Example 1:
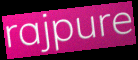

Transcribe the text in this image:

rajpure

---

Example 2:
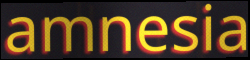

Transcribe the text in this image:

amnesia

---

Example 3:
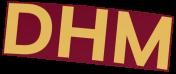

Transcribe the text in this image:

DHM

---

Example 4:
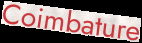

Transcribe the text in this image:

Coimbature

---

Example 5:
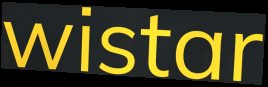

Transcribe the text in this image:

wistar